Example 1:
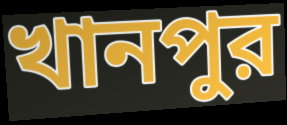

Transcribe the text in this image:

খানপুর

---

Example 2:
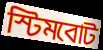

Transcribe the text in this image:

স্টিমবোট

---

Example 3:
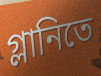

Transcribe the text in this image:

গ্লানিতে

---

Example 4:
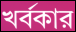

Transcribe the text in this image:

খর্বকার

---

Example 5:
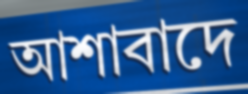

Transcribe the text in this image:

আশাবাদে